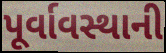
પૂર્વાવસ્થાની